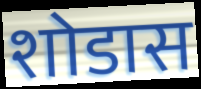
शोडास